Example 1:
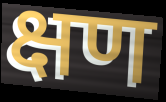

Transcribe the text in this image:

क्षण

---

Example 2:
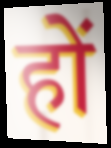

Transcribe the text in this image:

हों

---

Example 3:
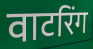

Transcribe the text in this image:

वाटरिंग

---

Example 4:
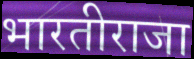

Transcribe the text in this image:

भारतीराजा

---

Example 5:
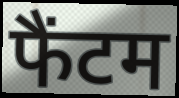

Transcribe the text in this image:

फैंटम